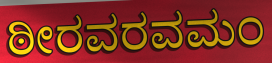
ಠೀರವರವಮಂ